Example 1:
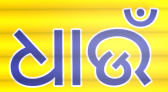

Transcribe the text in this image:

ଧାଉଁ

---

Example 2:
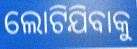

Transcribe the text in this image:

ଲୋଟିଯିବାକୁ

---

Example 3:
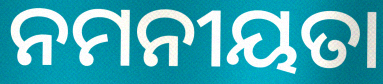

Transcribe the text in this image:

ନମନୀୟତା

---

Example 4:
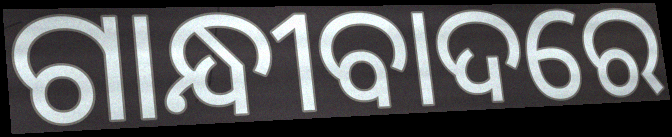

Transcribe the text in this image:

ଗାନ୍ଧୀବାଦରେ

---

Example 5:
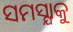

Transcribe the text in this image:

ସମସ୍ଯାକୁ